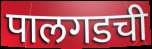
पालगडची